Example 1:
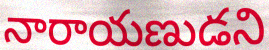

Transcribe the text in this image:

నారాయణుడని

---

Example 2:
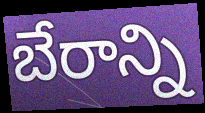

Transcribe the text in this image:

బేరాన్ని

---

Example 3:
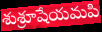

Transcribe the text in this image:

శుశ్రూషేయమపి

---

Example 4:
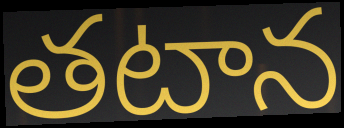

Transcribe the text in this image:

తటాన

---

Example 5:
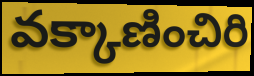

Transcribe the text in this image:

వక్కాణించిరి